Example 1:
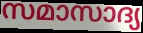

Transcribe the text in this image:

സമാസാദ്യ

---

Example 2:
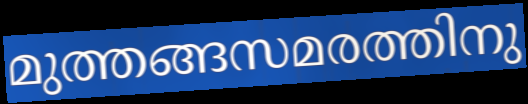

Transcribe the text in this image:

മുത്തങ്ങസമരത്തിനു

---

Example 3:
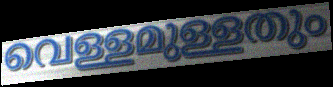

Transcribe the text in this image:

വെള്ളമുള്ളതും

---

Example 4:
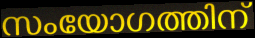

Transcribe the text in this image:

സംയോഗത്തിന്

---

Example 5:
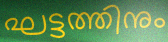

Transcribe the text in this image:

ഘട്ടത്തിനും